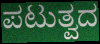
ಪಟುತ್ವದ